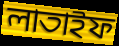
লাতাইফ